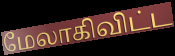
மேலாகிவிட்ட